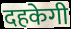
दहकेगी